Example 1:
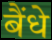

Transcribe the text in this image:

बैंधे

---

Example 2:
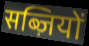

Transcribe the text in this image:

सब्ज़ियों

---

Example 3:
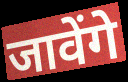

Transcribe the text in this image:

जावेंगे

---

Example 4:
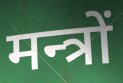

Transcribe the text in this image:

मन्त्रों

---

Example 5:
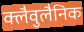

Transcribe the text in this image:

क्लैवुलैनिक